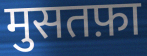
मुसतफ़ा